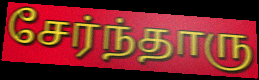
சேர்ந்தாரு